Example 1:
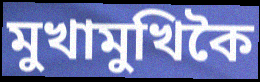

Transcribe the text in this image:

মুখামুখিকৈ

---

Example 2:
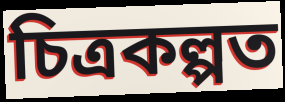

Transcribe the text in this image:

চিত্ৰকল্পত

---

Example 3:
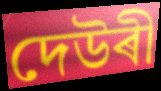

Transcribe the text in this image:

দেউৰী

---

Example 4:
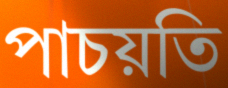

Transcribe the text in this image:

পাচয়তি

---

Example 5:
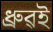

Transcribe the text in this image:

ধ্ৰুৱই